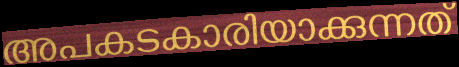
അപകടകാരിയാക്കുന്നത്